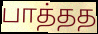
பாத்தத